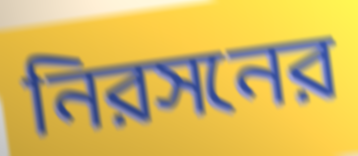
নিরসনের